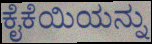
ಕೈಕೆಯಿಯನ್ನು